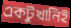
একটুখানিই